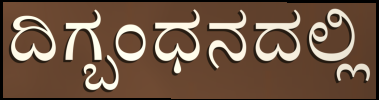
ದಿಗ್ಬಂಧನದಲ್ಲಿ